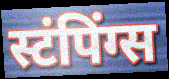
स्टंपिंग्स